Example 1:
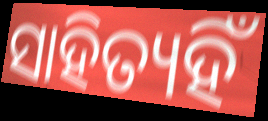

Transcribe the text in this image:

ସାହିତ୍ୟହିଁ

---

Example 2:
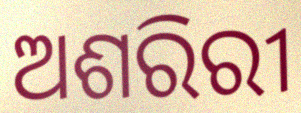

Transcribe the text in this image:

ଅଶରିରୀ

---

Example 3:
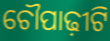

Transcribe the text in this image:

ଚୌପାଢ଼ୀଟି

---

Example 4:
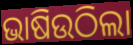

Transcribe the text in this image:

ଭାଷିଉଠିଲା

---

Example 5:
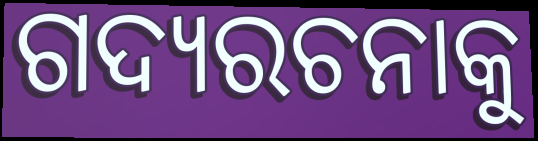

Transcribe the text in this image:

ଗଦ୍ୟରଚନାକୁ